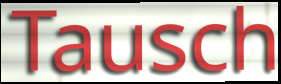
Tausch